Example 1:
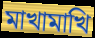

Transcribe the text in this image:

মাখামাখি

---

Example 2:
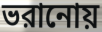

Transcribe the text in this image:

ভরানোয়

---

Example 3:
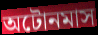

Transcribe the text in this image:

অটোনমাস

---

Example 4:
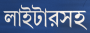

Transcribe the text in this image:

লাইটারসহ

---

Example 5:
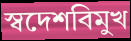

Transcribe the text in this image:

স্বদেশবিমুখ